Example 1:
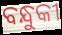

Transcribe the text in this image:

ବନ୍ଧୁକୀ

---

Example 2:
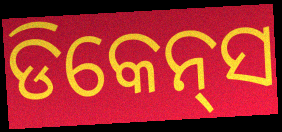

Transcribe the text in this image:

ଡିକେନ୍‌ସ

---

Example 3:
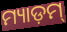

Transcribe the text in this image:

ମ୍ୟାଡ଼ମ୍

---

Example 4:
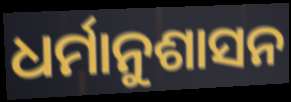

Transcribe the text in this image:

ଧର୍ମାନୁଶାସନ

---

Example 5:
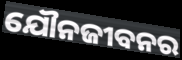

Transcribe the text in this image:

ଯୌନଜୀବନର